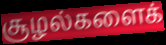
சூழல்களைக்